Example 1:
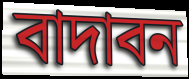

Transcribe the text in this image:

বাদাবন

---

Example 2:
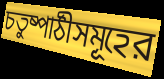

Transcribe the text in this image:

চতুষ্পাঠীসমূহের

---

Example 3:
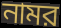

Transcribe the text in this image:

নামর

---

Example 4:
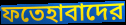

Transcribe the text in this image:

ফতেহাবাদের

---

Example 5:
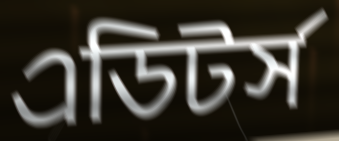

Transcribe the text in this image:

এডিটর্স